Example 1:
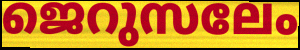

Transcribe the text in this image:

ജെറുസലേം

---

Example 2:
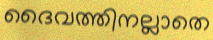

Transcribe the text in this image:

ദൈവത്തിനല്ലാതെ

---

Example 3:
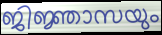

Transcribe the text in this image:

ജിജ്ഞാസയും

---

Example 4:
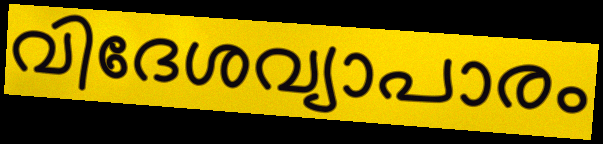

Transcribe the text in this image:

വിദേശവ്യാപാരം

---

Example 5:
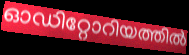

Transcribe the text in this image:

ഓഡിറ്റോറിയത്തിൽ